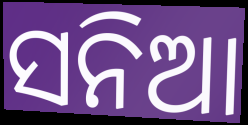
ସନିଆ